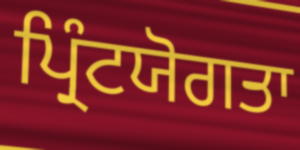
ਪ੍ਰਿੰਟਯੋਗਤਾ